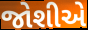
જોશીએ